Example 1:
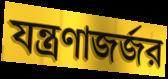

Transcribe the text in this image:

যন্ত্রণাজর্জর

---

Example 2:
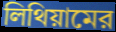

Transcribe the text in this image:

লিথিয়ামের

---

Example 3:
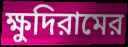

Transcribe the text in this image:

ক্ষুদিরামের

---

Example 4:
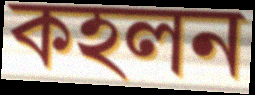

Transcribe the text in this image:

কহলন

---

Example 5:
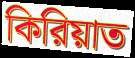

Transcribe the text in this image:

কিরিয়াত